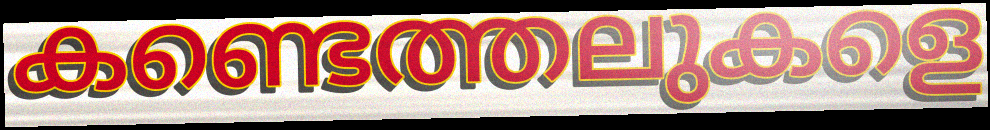
കണ്ടെത്തലുകളെ